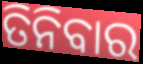
ତିନିବାର